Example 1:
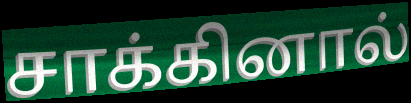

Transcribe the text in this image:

சாக்கினால்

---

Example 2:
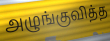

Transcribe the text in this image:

அழுங்குவித்த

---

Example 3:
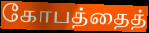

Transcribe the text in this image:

கோபத்தைத்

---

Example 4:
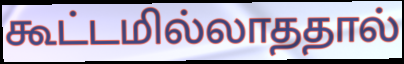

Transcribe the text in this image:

கூட்டமில்லாததால்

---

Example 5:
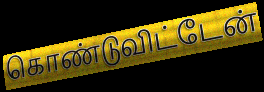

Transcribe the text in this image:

கொண்டுவிட்டேன்